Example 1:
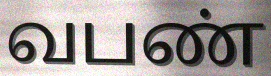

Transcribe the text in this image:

வபண்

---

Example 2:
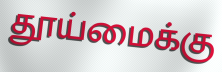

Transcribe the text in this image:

தூய்மைக்கு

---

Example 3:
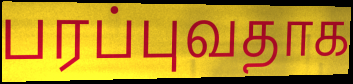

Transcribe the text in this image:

பரப்புவதாக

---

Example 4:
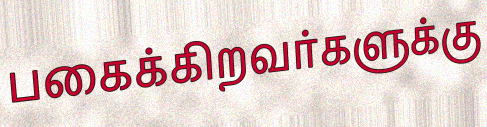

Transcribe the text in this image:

பகைக்கிறவர்களுக்கு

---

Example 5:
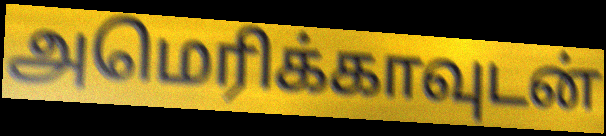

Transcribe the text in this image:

அமெரிக்காவுடன்